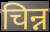
चिन्न